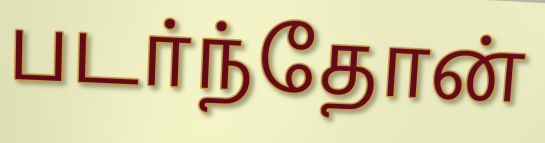
படர்ந்தோன்